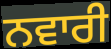
ਨਵਾਰੀ